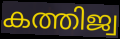
കത്തിജ്വ